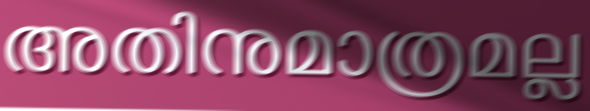
അതിനുമാത്രമല്ല